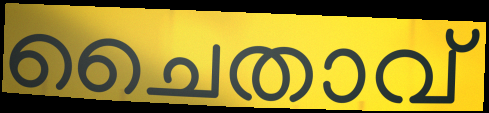
ചൈതാവ്